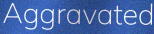
Aggravated